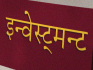
इन्वेस्ट्मन्ट